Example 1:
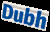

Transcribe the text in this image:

Dubh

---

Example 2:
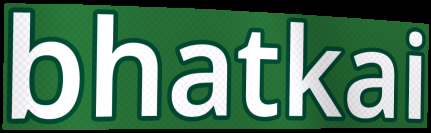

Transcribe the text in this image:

bhatkai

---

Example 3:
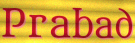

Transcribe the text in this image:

Prabad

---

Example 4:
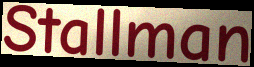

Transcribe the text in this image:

Stallman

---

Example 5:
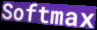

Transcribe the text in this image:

Softmax